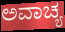
ಅವಾಚ್ಯ